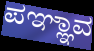
ಪಞ್ಞಾವ